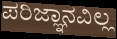
ಪರಿಜ್ಞಾನವಿಲ್ಲ